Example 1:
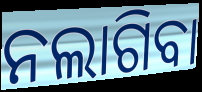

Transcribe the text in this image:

ନଲାଗିବା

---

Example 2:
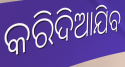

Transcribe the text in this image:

କରିଦିଆଯିବ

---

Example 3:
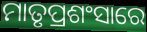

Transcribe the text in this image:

ମାତୃପ୍ରଶଂସାରେ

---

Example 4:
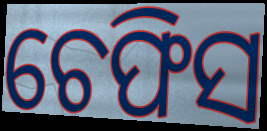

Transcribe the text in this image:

ଚେଫିସ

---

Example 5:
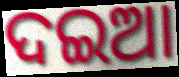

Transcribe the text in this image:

ଦଇଆ